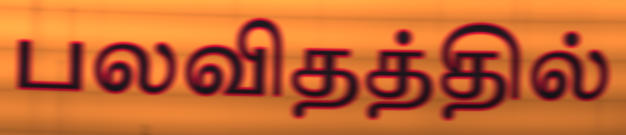
பலவிதத்தில்